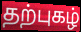
தற்புகழ்